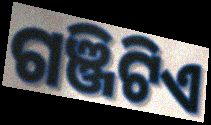
ଗଞ୍ଜିଟିଏ